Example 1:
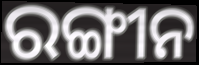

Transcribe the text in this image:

ରଙ୍ଗୀନ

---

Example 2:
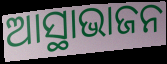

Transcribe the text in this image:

ଆସ୍ଥାଭାଜନ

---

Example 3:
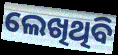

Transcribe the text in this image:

ଲେଖିଥିବି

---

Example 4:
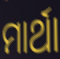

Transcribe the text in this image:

ମାର୍ଥା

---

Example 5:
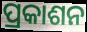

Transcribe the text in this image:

ପ୍ରକାଶନ